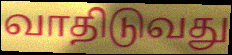
வாதிடுவது